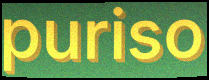
puriso